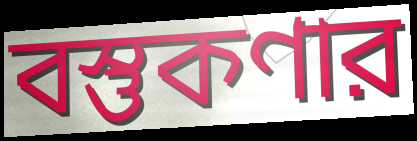
বস্তুকণার